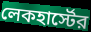
লেকহার্স্টের